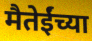
मैतेईंच्या